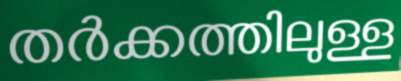
തർക്കത്തിലുള്ള